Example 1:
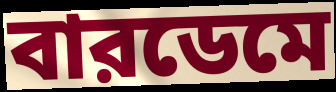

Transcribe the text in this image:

বারডেমে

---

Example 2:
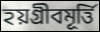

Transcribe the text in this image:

হয়গ্রীবমূর্ত্তি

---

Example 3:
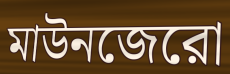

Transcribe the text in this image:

মাউনজেরো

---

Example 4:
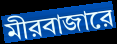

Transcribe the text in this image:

মীরবাজারে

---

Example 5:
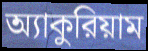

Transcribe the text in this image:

অ্যাকুরিয়াম